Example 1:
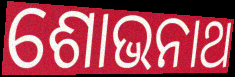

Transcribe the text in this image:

ଶୋଭନାଥ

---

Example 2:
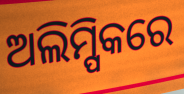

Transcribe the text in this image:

ଅଲିମ୍ପିକରେ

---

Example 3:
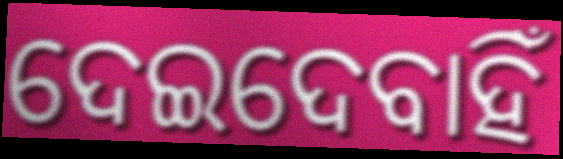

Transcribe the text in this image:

ଦେଇଦେବାହିଁ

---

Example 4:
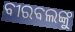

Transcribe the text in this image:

ବୀରବଲଙ୍କୁ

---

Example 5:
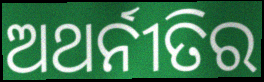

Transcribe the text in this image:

ଅଥର୍ନୀତିର